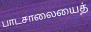
பாடசாலையைத்